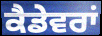
ਕੈਡੇਵਰਾਂ